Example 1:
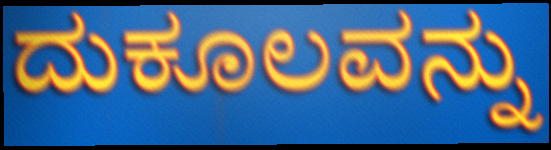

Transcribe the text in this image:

ದುಕೂಲವನ್ನು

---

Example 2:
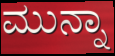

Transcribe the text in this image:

ಮುನ್ನಾ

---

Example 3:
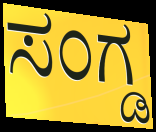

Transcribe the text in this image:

ಸಂಗ್ಡ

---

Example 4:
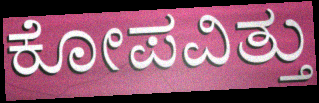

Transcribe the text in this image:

ಕೋಪವಿತ್ತು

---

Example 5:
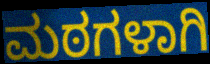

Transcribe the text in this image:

ಮಠಗಳಾಗಿ